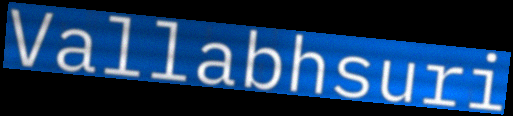
Vallabhsuri